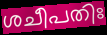
ശചീപതിഃ